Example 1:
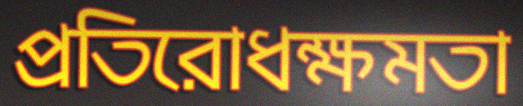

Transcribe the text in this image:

প্রতিরোধক্ষমতা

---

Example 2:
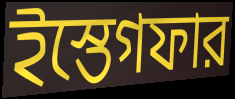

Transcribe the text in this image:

ইস্তেগফার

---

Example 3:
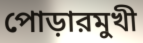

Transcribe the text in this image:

পোড়ারমুখী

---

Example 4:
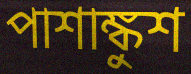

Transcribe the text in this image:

পাশাঙ্কুশ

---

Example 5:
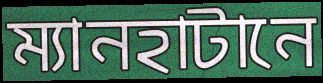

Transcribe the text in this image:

ম্যানহাটানে